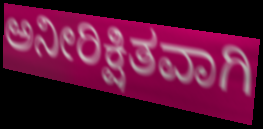
ಅನೀರಿಕ್ಷಿತವಾಗಿ